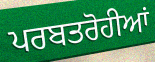
ਪਰਬਤਰੋਹੀਆਂ